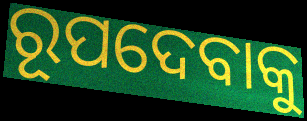
ରୂପଦେବାକୁ